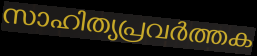
സാഹിത്യപ്രവർത്തക